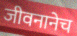
जीवनानेच